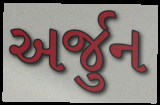
અર્જુન